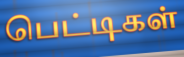
பெட்டிகள்